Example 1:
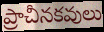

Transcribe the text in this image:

ప్రాచీనకవులు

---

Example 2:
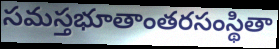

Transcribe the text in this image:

సమస్తభూతాంతరసంస్థితా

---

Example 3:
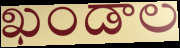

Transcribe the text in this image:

ఖండాల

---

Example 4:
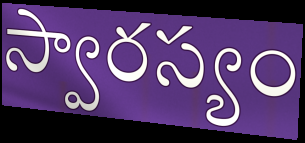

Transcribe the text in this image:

స్వారస్యం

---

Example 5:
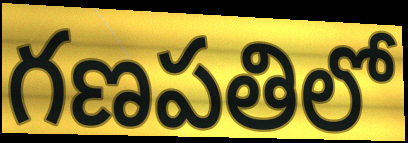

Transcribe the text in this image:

గణపతిలో